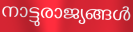
നാട്ടുരാജ്യങ്ങൾ